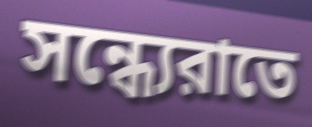
সন্ধ্যেরাতে